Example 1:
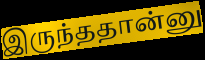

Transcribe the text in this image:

இருந்ததான்னு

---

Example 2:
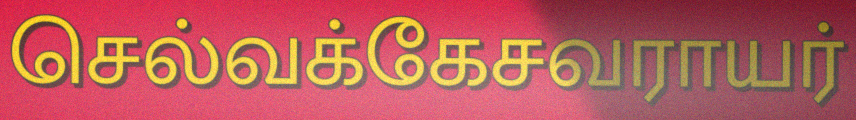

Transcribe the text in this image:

செல்வக்கேசவராயர்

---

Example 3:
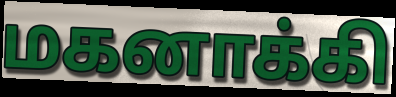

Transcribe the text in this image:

மகனாக்கி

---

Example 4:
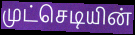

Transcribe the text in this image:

முட்செடியின்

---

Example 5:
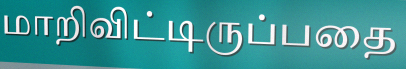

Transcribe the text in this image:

மாறிவிட்டிருப்பதை